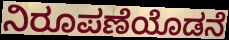
ನಿರೂಪಣೆಯೊಡನೆ